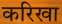
करिखा